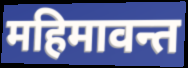
महिमावन्त